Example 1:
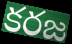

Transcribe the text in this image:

కరజ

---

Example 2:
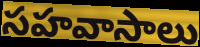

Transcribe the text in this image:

సహవాసాలు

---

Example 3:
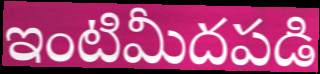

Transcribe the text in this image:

ఇంటిమీదపడి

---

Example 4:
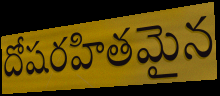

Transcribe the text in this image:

దోషరహితమైన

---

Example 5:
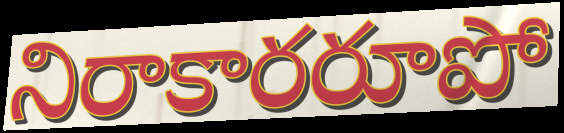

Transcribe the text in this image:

నిరాకారరూపో